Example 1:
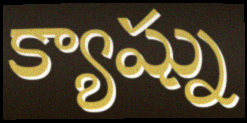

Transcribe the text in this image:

క్యాష్ను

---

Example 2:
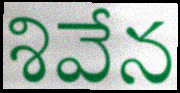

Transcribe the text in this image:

శివేన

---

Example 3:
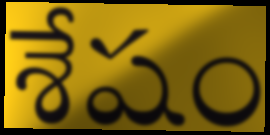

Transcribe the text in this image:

శేషం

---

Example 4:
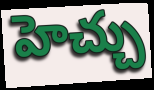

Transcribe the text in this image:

హెచ్చు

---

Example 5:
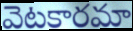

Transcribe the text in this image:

వెటకారమా